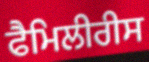
ਫੈਮਿਲੀਰੀਸ